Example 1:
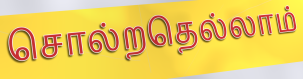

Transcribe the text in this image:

சொல்றதெல்லாம்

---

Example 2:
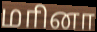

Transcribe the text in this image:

மரினா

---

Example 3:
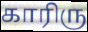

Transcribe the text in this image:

காரிரு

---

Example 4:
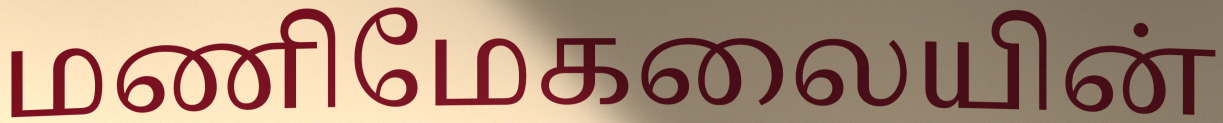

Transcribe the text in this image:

மணிமேகலையின்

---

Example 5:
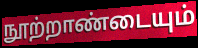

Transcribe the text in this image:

நூற்றாண்டையும்